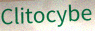
Clitocybe